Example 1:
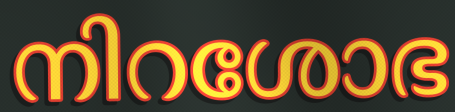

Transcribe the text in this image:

നിറശോഭ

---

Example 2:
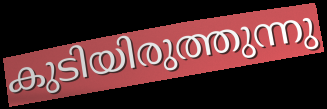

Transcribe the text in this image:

കുടിയിരുത്തുന്നു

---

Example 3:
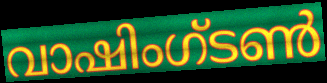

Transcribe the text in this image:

വാഷിംഗ്ടൺ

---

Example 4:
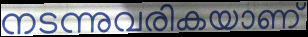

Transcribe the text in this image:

നടന്നുവരികയാണ്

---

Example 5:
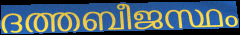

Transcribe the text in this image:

ദത്തബീജസ്ഥം